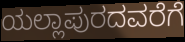
ಯಲ್ಲಾಪುರದವರೆಗೆ